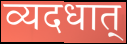
व्यदधात्